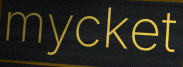
mycket